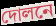
দোলনে